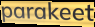
parakeet